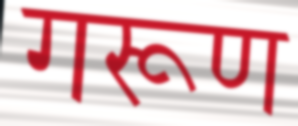
गरूण